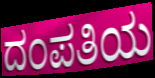
ದಂಪತಿಯ